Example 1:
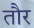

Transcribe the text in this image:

तौर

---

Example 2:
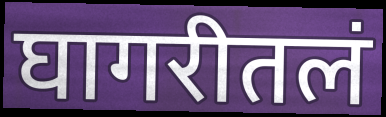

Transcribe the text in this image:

घागरीतलं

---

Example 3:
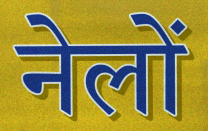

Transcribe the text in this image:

नेलों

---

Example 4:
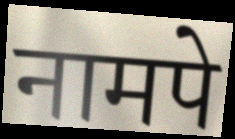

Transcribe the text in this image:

नामपे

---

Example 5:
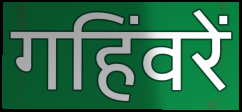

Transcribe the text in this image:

गहिंवरें